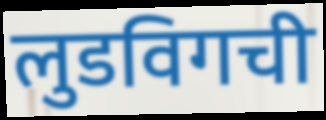
लुडविगची